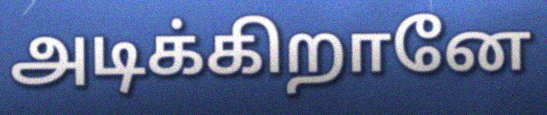
அடிக்கிறானே